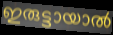
ഇരുട്ടായാൽ